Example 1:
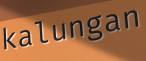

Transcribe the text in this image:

kalungan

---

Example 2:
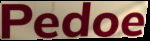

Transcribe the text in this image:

Pedoe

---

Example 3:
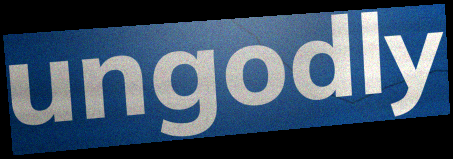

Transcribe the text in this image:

ungodly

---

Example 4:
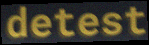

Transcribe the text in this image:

detest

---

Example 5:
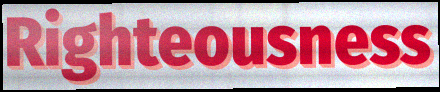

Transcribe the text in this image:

Righteousness